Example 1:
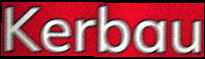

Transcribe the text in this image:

Kerbau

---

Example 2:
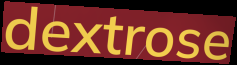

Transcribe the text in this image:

dextrose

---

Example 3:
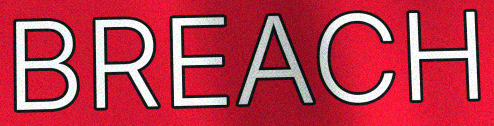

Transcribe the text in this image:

BREACH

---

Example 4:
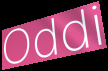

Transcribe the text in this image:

Oddi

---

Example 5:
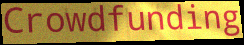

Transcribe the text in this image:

Crowdfunding